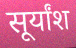
सूर्यांश